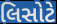
લિસોટે